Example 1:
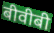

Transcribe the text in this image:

बीवीबी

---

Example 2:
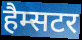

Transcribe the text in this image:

हैम्सटर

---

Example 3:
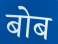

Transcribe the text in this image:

बोब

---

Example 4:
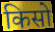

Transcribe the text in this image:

किसो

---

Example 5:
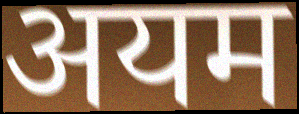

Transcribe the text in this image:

अयम